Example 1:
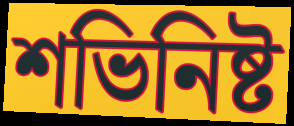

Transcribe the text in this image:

শভিনিষ্ট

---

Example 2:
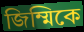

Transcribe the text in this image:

জিম্মিকে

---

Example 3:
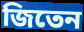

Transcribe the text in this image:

জিতেন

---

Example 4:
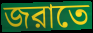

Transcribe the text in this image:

জরাতে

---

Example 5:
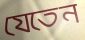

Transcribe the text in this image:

যেতেন